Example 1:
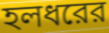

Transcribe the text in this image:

হলধরের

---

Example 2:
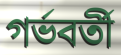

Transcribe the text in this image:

গর্ভবর্তী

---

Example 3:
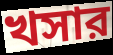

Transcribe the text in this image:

খসার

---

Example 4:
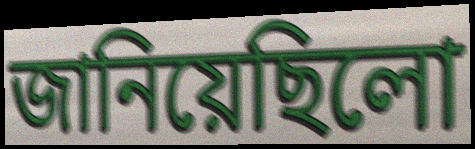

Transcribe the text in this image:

জানিয়েছিলো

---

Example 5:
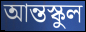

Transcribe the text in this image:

আন্তস্কুল